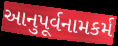
આનુપૂર્વનામકર્મ